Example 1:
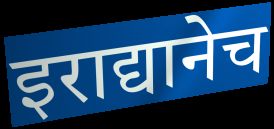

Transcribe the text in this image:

इराद्यानेच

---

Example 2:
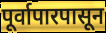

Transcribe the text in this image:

पूर्वापारपासून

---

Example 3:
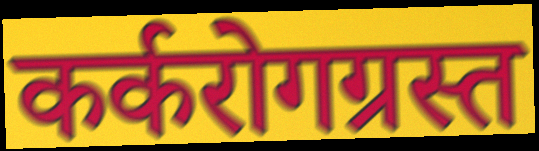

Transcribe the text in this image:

कर्करोगग्रस्त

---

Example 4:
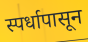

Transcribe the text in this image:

स्पर्धापासून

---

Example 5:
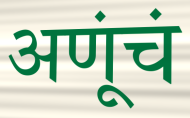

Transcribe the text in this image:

अणूंचं